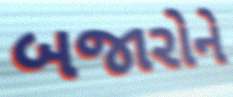
બજારોને